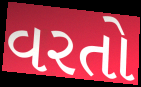
વરતો